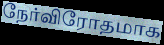
நேர்விரோதமாக